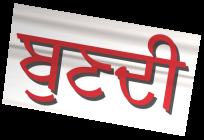
ਬੁਣਦੀ